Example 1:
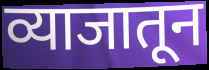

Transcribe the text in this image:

व्याजातून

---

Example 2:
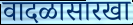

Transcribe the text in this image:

वादळासारखा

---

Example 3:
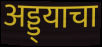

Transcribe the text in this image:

अड्ड्याचा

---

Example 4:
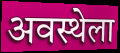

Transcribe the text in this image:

अवस्थेला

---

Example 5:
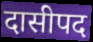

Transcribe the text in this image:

दासीपद